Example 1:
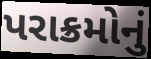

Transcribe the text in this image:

પરાક્રમોનું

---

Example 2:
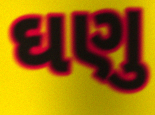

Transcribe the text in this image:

ઘણુ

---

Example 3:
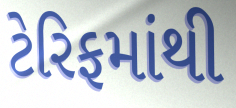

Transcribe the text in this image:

ટેરિફમાંથી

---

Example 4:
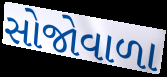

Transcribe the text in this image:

સોજોવાળા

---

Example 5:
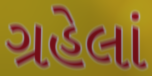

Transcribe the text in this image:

ગ્રહેલાં